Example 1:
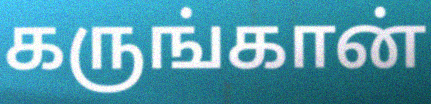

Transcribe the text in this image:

கருங்கான்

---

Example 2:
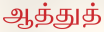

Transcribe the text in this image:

ஆத்துத்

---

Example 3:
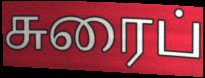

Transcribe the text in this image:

சுரைப்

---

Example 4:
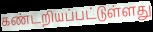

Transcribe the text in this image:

கண்டறியப்பட்டுள்ளது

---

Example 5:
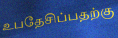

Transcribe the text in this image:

உபதேசிப்பதற்கு